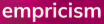
empricism